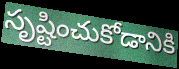
సృష్టించుకోడానికి